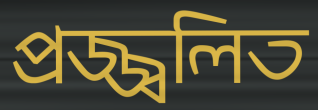
প্রজ্জ্বলিত